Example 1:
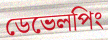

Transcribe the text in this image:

ডেভেলপিং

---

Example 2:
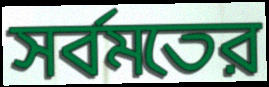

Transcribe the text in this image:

সর্বমতের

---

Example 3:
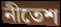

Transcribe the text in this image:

নীতেশ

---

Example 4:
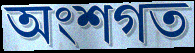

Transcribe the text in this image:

অংশগত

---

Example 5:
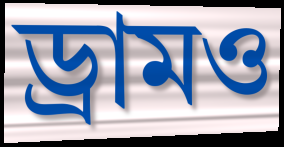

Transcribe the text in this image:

ড্রামও